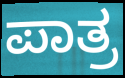
ಪಾತ್ರ